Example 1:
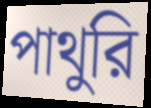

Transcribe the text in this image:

পাথুরি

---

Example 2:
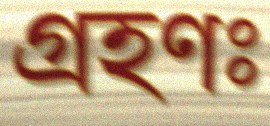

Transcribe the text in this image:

গ্রহণঃ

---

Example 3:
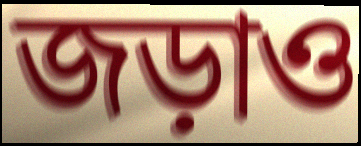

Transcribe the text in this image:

জড়াও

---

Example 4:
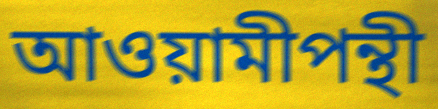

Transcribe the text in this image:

আওয়ামীপন্থী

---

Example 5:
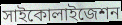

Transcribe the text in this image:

সাইকোলাইজেশন